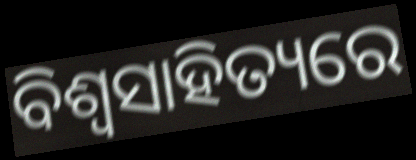
ବିଶ୍ବସାହିତ୍ୟରେ